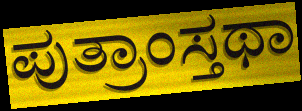
ಪುತ್ರಾಂಸ್ತಥಾ